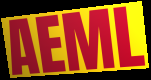
AEML